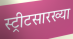
स्ट्रीटसारख्या